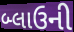
બ્લાઉની